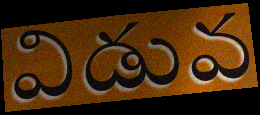
విడువ